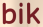
bik